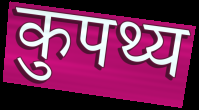
कुपथ्य